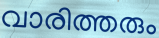
വാരിത്തരും